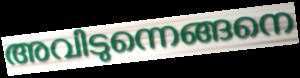
അവിടുന്നെങ്ങനെ